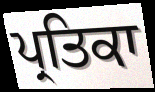
ਪ੍ਰਤਿਕਾ